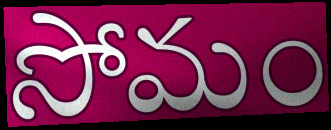
సోమం